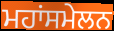
ਮਹਾਂਸਮੇਲਨ